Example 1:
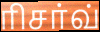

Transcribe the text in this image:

ரிசர்வ்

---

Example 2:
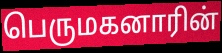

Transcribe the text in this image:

பெருமகனாரின்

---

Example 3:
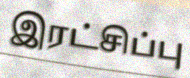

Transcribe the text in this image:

இரட்சிப்பு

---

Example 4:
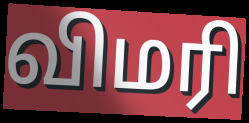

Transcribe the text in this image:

விமரி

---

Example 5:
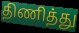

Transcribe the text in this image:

திணித்து